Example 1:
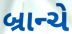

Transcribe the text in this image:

બ્રાન્ચે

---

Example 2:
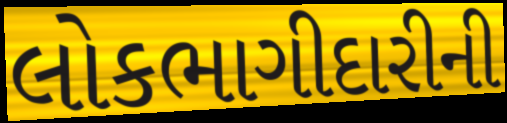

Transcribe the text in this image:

લોકભાગીદારીની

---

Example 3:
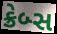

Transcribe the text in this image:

ક્રેબ્સ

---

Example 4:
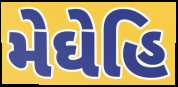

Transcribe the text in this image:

મેઘેહિ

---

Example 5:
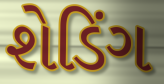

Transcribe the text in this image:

શેડિંગ